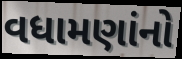
વધામણાંનો